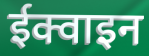
ईक्वाइन